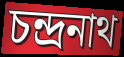
চন্দ্রনাথ